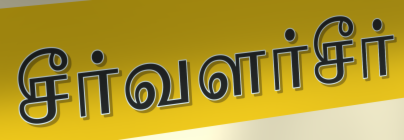
சீர்வளர்சீர்